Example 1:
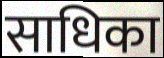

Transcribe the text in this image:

साधिका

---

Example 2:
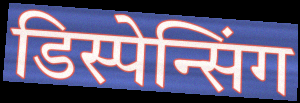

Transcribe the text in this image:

डिस्पेन्सिंग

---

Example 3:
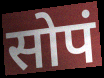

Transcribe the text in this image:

सोपं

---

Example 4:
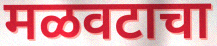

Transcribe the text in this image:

मळवटाचा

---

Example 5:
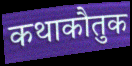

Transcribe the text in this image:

कथाकौतुक